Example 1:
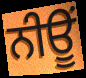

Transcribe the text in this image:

ਨੀਊਂ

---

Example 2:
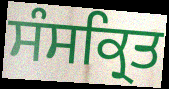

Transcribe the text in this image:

ਸੰਸਕ੍ਰਿਤ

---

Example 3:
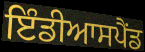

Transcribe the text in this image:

ਇੰਡੀਆਸਪੈਂਡ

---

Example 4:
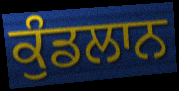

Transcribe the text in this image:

ਕੁੰਡਲਾਨ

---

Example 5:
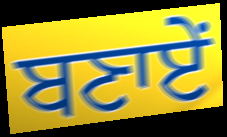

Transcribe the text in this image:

ਬਣਾਏਂ